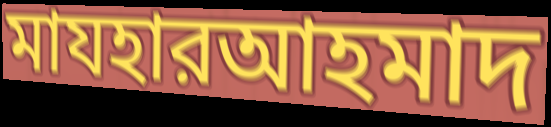
মাযহারআহমাদ